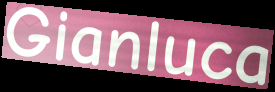
Gianluca